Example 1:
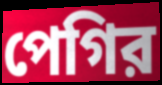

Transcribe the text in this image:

পেগির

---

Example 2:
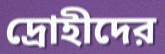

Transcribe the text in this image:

দ্রোহীদের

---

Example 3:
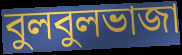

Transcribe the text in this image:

বুলবুলভাজা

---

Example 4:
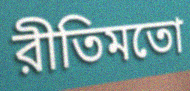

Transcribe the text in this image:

রীতিমতো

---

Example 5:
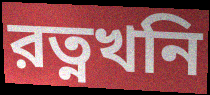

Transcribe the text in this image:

রত্নখনি